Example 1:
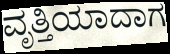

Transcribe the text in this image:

ವೃತ್ತಿಯಾದಾಗ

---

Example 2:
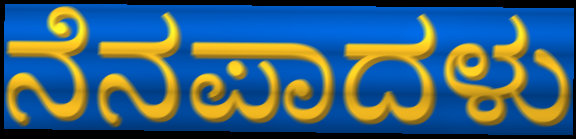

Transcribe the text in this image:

ನೆನಪಾದಳು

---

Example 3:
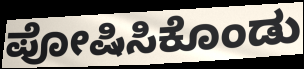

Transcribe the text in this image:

ಪೋಷಿಸಿಕೊಂಡು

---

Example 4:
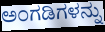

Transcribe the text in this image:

ಅಂಗಡಿಗಳನ್ನು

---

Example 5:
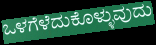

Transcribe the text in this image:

ಒಳಗೆಳೆದುಕೊಳ್ಳುವುದು